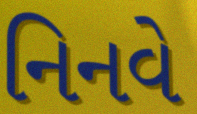
નિનવે